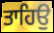
ਤਾਹਿਉ